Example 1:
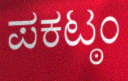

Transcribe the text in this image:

ಪಕಟ್ಠಂ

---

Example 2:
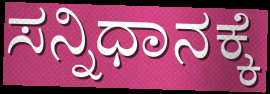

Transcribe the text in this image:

ಸನ್ನಿಧಾನಕ್ಕೆ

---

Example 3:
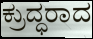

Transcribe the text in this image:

ಕ್ರುದ್ಧರಾದ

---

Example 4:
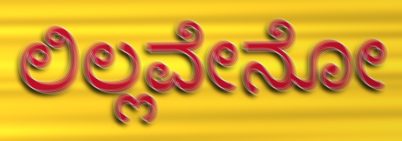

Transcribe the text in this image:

ಲಿಲ್ಲವೇನೋ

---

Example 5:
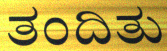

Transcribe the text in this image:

ತಂದಿತು